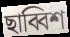
ছাব্বিশ